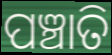
ପଞ୍ଚାତି